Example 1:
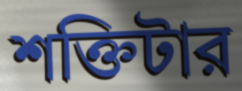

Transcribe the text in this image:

শক্তিটার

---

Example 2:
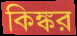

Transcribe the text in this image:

কিঙ্কর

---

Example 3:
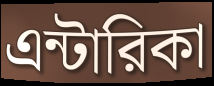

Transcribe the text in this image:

এন্টারিকা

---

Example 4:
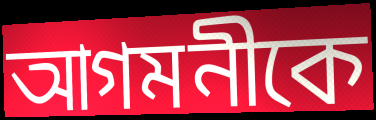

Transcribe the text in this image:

আগমনীকে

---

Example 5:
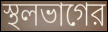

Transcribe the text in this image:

স্থলভাগের